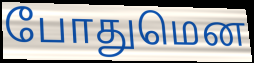
போதுமென